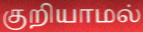
குறியாமல்